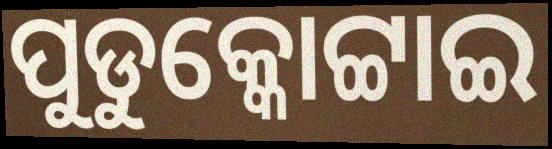
ପୁଡୁକ୍କୋଟ୍ଟାଇ